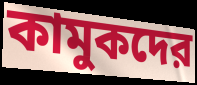
কামুকদের